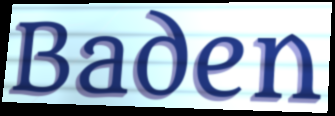
Baden